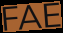
FAE